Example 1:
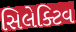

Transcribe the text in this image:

સિલેક્ટિવ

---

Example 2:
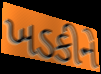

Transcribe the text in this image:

ખડકીને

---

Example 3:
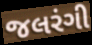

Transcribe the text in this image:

જલરંગી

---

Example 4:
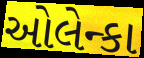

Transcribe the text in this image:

ઓલેન્કા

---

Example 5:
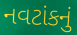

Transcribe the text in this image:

નવટાંકનું